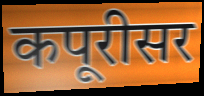
कपूरीसर